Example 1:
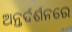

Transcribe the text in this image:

ଅନ୍ତର୍ଦର୍ଶନରେ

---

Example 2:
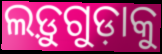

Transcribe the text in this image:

ଲଡ଼ୁଗୁଡ଼ାକୁ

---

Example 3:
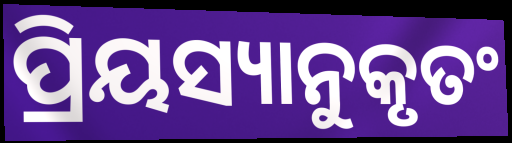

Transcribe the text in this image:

ପ୍ରିୟସ୍ୟାନୁକୃତଂ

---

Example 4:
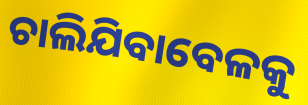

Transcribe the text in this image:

ଚାଲିଯିବାବେଳକୁ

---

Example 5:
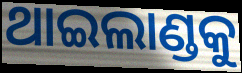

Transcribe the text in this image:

ଥାଇଲାଣ୍ଡକୁ